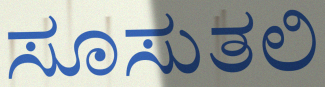
ಸೂಸುತಲಿ